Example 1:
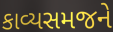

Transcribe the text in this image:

કાવ્યસમજને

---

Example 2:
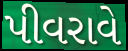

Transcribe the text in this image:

પીવરાવે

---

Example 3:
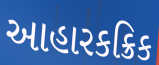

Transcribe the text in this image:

આહારકક્રિક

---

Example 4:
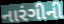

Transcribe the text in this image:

નારંગીની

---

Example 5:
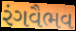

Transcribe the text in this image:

રંગવૈભવ